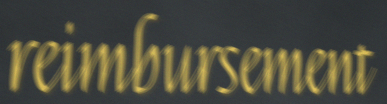
reimbursement